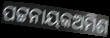
ପଟ୍ଟନାୟକଅମିଶ